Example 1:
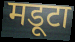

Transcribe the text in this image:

मडूटा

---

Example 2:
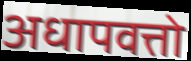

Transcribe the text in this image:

अधापवत्तो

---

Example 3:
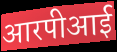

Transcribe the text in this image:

आरपीआई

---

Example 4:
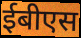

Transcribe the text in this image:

ईबीएस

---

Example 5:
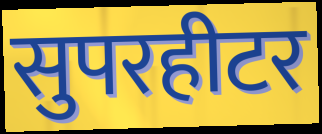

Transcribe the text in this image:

सुपरहीटर